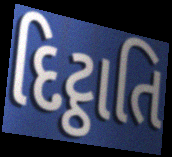
દિટ્ઠાતિ